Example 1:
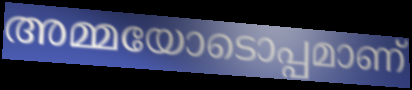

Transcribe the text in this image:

അമ്മയോടൊപ്പമാണ്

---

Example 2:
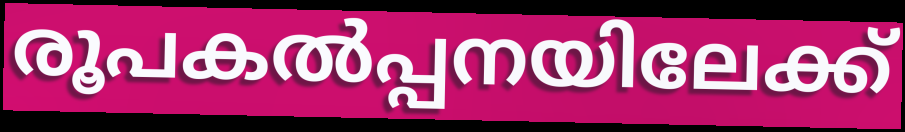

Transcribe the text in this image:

രൂപകൽപ്പനയിലേക്ക്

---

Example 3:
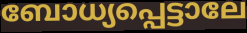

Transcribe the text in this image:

ബോധ്യപ്പെട്ടാലേ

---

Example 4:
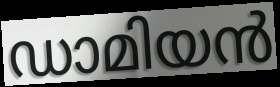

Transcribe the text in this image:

ഡാമിയൻ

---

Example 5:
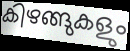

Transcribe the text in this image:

കിഴങ്ങുകളും